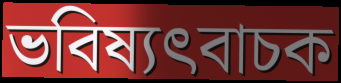
ভবিষ্যৎবাচক